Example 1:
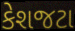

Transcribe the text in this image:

કેશજટા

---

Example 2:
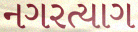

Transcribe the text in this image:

નગરત્યાગ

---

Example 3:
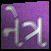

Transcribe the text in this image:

નેત્ર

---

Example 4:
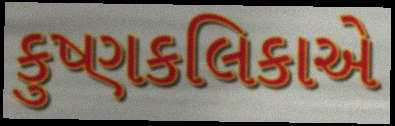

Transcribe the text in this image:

કુષ્ણકલિકાએ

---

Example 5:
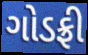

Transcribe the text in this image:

ગોડફ્રી